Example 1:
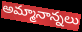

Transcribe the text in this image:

అమ్మానాన్నలు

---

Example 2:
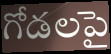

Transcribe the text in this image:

గోడలపై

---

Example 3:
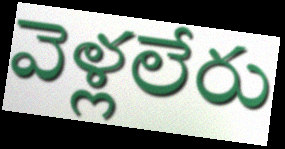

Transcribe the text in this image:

వెళ్లలేరు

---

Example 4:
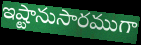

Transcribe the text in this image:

ఇష్టానుసారముగా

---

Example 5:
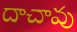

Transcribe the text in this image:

దాచావు